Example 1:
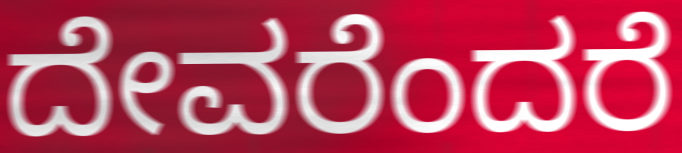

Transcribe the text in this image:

ದೇವರೆಂದರೆ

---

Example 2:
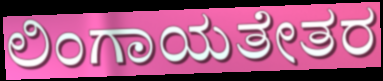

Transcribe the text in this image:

ಲಿಂಗಾಯತೇತರ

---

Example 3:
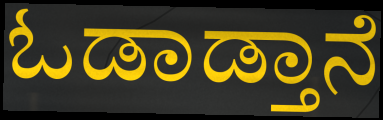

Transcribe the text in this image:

ಓಡಾಡ್ತಾನೆ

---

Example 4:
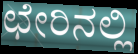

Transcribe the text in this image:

ಛೇರಿನಲ್ಲಿ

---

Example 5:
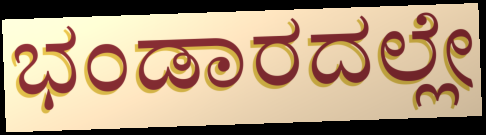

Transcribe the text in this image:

ಭಂಡಾರದಲ್ಲೇ